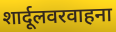
शार्दूलवरवाहना